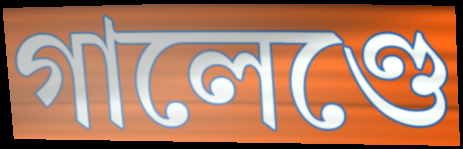
গালেণ্ডে